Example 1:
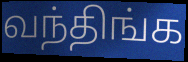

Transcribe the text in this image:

வந்திங்க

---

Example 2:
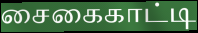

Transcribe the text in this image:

சைகைகாட்டி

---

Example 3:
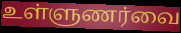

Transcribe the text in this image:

உள்ளுணர்வை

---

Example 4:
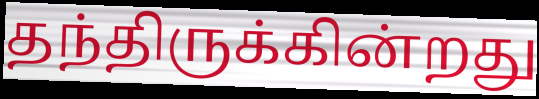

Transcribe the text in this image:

தந்திருக்கின்றது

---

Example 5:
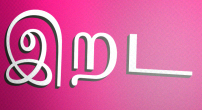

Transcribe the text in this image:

இறட